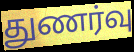
துணர்வு